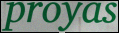
proyas